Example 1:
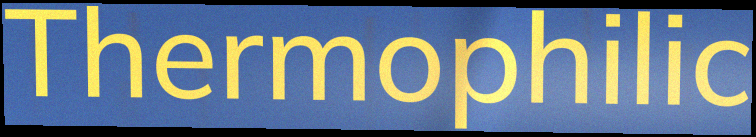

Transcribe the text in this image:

Thermophilic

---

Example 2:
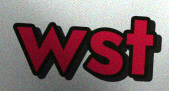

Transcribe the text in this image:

wst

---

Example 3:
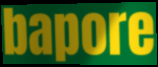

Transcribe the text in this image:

bapore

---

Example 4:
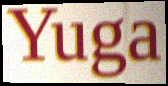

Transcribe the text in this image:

Yuga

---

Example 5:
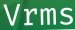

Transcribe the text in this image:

Vrms